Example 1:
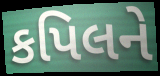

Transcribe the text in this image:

કપિલને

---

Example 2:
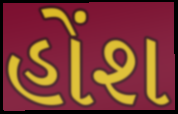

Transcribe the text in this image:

હોંશ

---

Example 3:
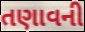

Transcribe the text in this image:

તણાવની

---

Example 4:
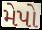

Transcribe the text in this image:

મેપો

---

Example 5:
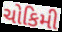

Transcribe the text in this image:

ચોકિમી